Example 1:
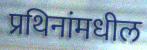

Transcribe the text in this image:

प्रथिनांमधील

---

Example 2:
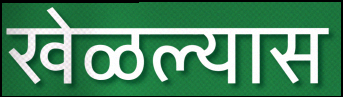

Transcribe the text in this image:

खेळल्यास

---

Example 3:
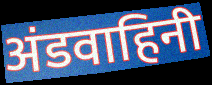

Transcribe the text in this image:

अंडवाहिनी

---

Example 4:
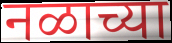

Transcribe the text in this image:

नळाच्या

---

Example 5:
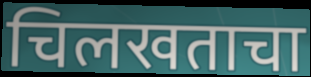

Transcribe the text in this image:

चिलखताचा